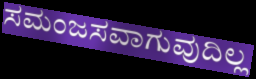
ಸಮಂಜಸವಾಗುವುದಿಲ್ಲ